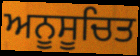
ਅਨੂਸੂਚਿਤ